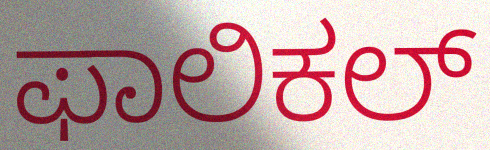
ಫಾಲಿಕಲ್